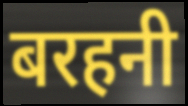
बरहनी